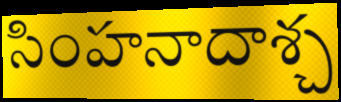
సింహనాదాశ్చ